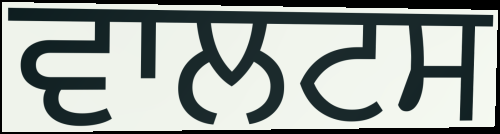
ਵਾਲਟਸ